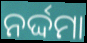
ନର୍ଦ୍ଦମା